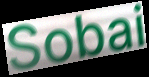
Sobai